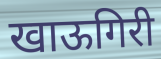
खाऊगिरी